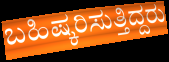
ಬಹಿಷ್ಕರಿಸುತ್ತಿದ್ದರು